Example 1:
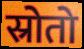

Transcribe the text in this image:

स्रोतो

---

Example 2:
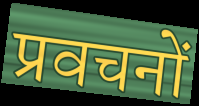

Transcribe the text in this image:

प्रवचनों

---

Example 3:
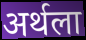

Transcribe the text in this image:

अर्थला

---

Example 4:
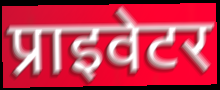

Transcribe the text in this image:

प्राइवेटर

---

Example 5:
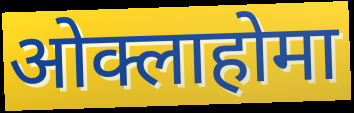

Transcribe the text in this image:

ओक्लाहोमा